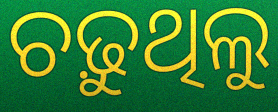
ଚଢ଼ୁଥିଲୁ